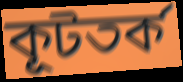
কূটতর্ক